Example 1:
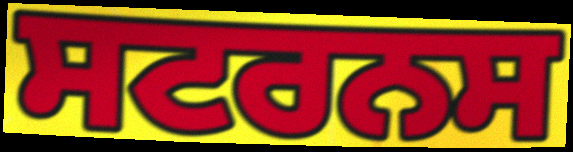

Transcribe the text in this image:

ਸਟਰਨਸ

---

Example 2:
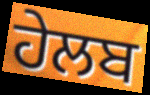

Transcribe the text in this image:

ਹੇਲਬ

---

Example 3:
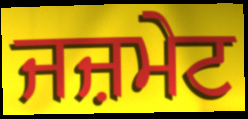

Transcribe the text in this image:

ਜਜ਼ਮੇਟ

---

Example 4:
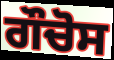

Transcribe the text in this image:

ਗੌਚੋਸ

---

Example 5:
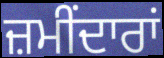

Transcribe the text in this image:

ਜ਼ਮੀਂਦਾਰਾਂ